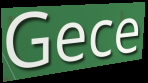
Gece